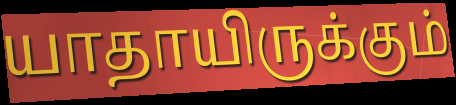
யாதாயிருக்கும்